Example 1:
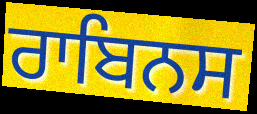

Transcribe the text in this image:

ਰਾਬਿਨਸ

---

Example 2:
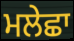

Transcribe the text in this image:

ਮਲੇਛਾ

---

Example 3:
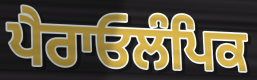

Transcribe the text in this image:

ਪੈਰਾਓਲੰਪਿਕ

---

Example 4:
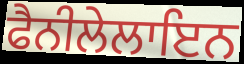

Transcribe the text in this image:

ਫੈਨੀਲੇਲਾਇਨ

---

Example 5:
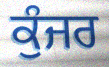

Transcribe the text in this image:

ਕੁੰਜਰ